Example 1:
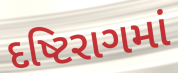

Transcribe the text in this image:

દષ્ટિરાગમાં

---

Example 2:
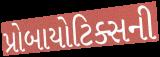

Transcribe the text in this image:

પ્રોબાયોટિક્સની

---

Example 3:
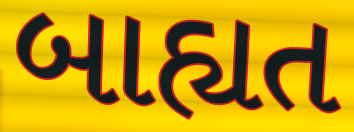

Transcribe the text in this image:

બાહ્યત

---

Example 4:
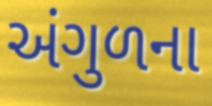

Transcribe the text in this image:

અંગુળના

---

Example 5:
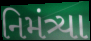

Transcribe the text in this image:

નિમંત્ર્યા